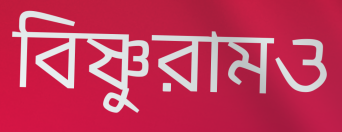
বিষ্ণুরামও